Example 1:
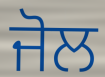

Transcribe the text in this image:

ਜੋਲ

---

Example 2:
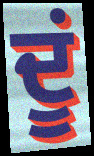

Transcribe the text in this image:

ਦੂਂ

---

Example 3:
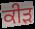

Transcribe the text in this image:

ਕੀੜ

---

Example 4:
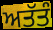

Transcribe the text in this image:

ਅਤੱਤੰ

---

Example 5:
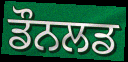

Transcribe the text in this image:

ਡੌਨਲਡ